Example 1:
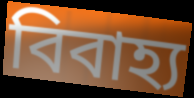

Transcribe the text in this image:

বিবাহ্য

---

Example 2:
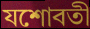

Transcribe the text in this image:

যশোবতী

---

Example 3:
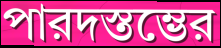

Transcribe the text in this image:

পারদস্তম্ভের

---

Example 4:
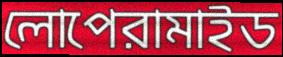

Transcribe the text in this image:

লোপেরামাইড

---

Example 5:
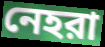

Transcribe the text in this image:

নেহরা